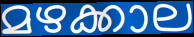
മഴക്കാല